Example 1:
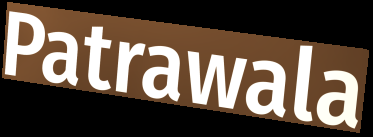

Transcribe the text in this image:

Patrawala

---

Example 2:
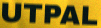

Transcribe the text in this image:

UTPAL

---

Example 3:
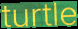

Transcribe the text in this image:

turtle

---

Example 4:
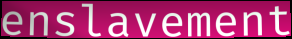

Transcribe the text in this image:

enslavement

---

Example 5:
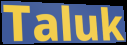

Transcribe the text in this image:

Taluk